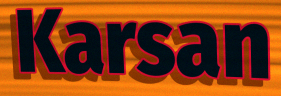
Karsan